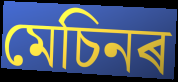
মেচিনৰ